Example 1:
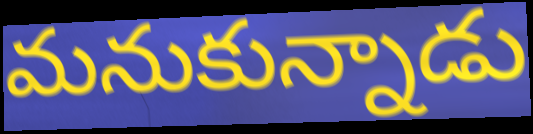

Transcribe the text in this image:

మనుకున్నాడు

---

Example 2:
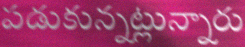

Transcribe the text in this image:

పడుకున్నట్లున్నారు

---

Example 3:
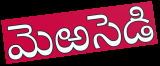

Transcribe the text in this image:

మెఱసెడి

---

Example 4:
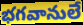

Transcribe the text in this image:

భగవానులే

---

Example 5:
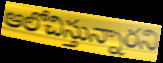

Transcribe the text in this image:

ఆలోచిస్తున్నారని